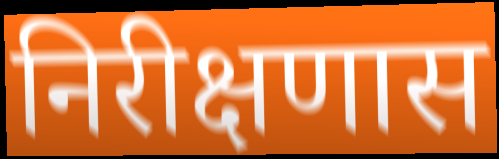
निरीक्षणास